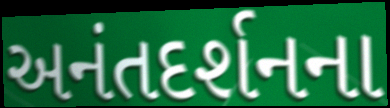
અનંતદર્શનના